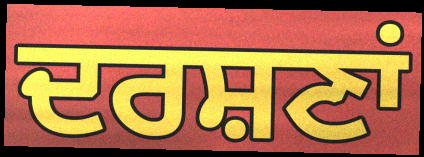
ਦਰਸ਼ਣਾਂ